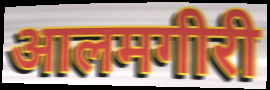
आलमगीरी